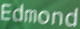
Edmond